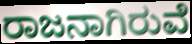
ರಾಜನಾಗಿರುವೆ